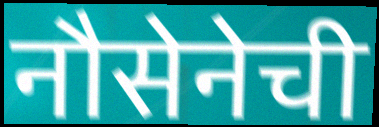
नौसेनेची